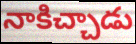
నాకిచ్చాడు